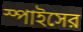
স্পাইসের